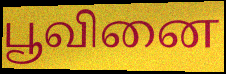
பூவினை